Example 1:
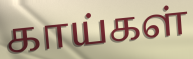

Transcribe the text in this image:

காய்கள்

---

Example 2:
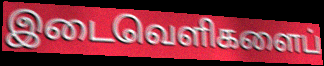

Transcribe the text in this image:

இடைவெளிகளைப்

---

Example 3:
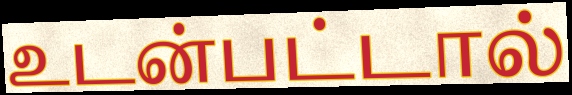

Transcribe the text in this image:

உடன்பட்டால்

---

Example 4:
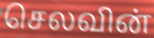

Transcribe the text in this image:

செலவின்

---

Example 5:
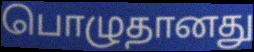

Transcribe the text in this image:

பொழுதானது